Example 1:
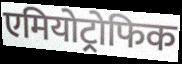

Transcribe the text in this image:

एमियोट्रोफिक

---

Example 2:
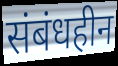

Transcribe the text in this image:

संबंधहीन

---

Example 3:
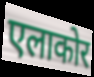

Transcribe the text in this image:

एलाकोर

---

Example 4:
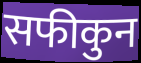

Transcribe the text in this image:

सफीकुन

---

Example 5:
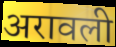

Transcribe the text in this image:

अरावली